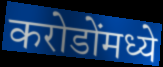
करोडोंमध्ये